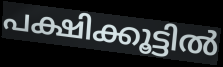
പക്ഷിക്കൂട്ടിൽ